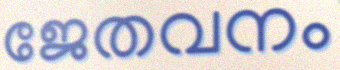
ജേതവനം